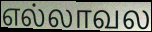
எல்லாவல